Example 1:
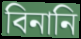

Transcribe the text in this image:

বিনানি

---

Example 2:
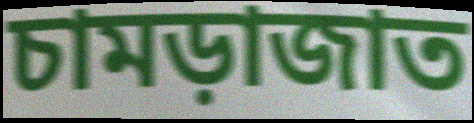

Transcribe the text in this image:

চামড়াজাত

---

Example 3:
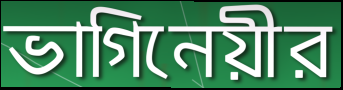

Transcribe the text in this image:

ভাগিনেয়ীর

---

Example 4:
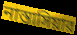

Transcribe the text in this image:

নাস্তাসিয়ার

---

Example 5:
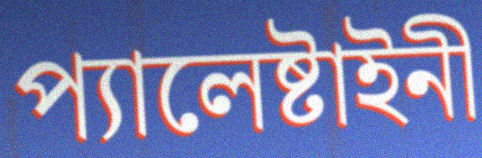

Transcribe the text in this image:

প্যালেষ্টাইনী